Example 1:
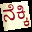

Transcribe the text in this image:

ನೆಕ್ಕಿ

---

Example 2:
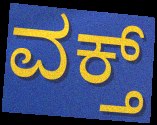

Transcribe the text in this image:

ವಕ್ತ್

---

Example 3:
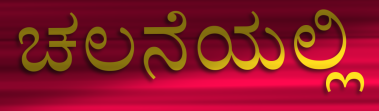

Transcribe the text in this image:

ಚಲನೆಯಲ್ಲಿ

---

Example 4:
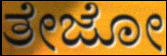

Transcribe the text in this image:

ತೇಜೋ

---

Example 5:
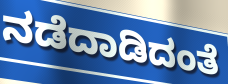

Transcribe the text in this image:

ನಡೆದಾಡಿದಂತೆ